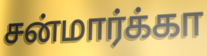
சன்மார்க்கா